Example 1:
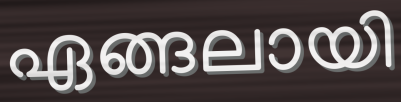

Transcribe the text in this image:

ഏങ്ങലായി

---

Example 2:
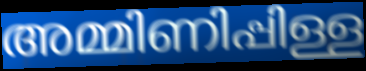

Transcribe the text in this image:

അമ്മിണിപ്പിള്ള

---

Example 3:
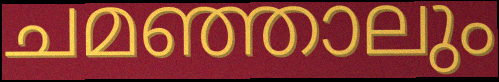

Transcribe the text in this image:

ചമഞ്ഞാലും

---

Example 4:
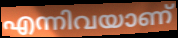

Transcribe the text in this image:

എന്നിവയാണ്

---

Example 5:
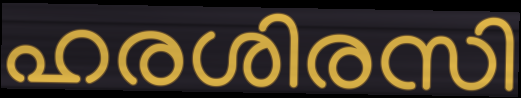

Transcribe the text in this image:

ഹരശിരസി